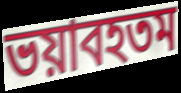
ভয়াবহতম